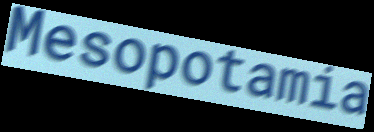
Mesopotamia